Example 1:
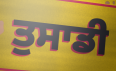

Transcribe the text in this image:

ਤੁਸਾਡੀ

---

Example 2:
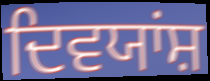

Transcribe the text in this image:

ਦਿਵਯਾਂਸ਼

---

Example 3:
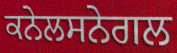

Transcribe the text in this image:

ਕਨੇਲਸਨੇਗਲ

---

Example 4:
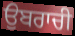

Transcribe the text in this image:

ਉਬਰਾਚੀ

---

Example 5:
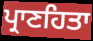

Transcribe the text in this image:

ਪ੍ਰਾਣਹਿਤਾ